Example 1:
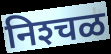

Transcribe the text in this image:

निश्‍चळ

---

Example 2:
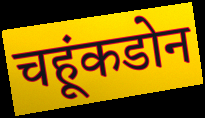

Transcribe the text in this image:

चहूंकडोन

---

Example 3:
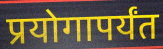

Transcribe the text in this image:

प्रयोगापर्यंत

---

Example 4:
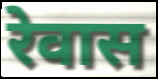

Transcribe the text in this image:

रेवास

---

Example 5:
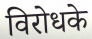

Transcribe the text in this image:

विरोधके